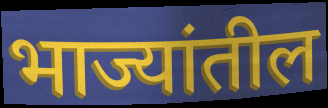
भाज्यांतील